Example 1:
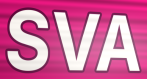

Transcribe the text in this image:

SVA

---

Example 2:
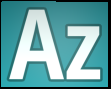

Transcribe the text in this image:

Az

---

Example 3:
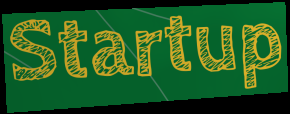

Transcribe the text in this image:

Startup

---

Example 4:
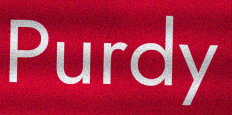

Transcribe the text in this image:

Purdy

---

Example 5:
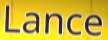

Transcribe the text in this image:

Lance